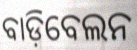
ବାଡ଼ିବେଲନ